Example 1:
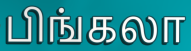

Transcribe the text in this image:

பிங்கலா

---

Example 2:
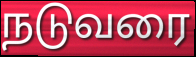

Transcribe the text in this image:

நடுவரை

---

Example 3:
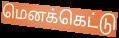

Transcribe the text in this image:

மெனக்கெட்டு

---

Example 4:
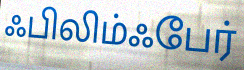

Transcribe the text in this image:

ஃபிலிம்ஃபேர்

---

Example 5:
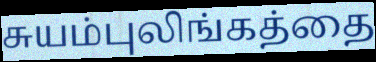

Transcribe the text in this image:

சுயம்புலிங்கத்தை